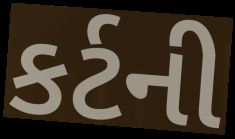
કર્ટની